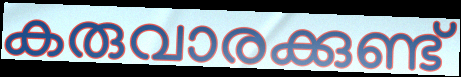
കരുവാരക്കുണ്ട്